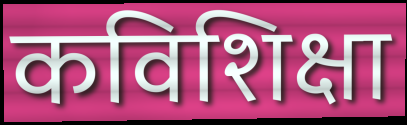
कविशिक्षा